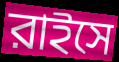
রাইসে